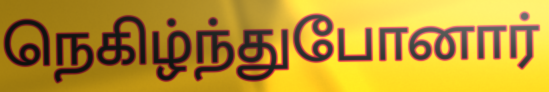
நெகிழ்ந்துபோனார்